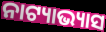
ନାଟ୍ୟାଭ୍ୟାସ